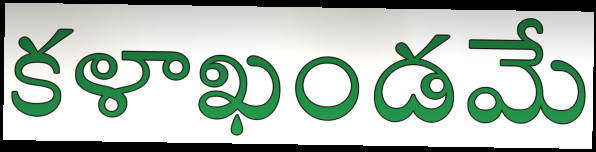
కళాఖండమే